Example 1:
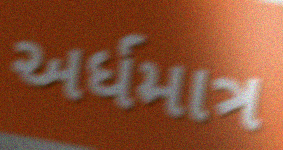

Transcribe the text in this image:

અર્ધમાત્ર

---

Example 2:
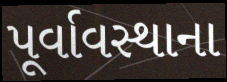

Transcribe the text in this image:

પૂર્વાવસ્થાના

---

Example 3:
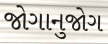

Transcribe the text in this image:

જોગાનુજોગ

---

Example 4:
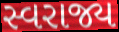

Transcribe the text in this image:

સ્વરાજ્ય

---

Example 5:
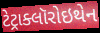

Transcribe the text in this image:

ટેટ્રાક્લૉરોઇથેન